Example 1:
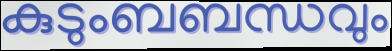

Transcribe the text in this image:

കുടുംബബന്ധവും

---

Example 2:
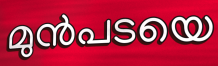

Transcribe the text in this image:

മുൻപടയെ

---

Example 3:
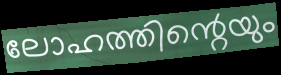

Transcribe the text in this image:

ലോഹത്തിന്റെയും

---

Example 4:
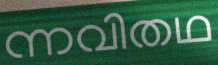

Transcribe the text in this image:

ന്നവിതഥ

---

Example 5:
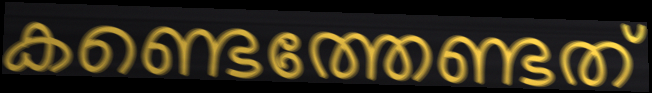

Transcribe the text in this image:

കണ്ടെത്തേണ്ടത്